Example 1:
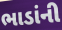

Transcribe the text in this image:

ભાડાંની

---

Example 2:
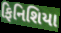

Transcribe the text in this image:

ફિનિશિયા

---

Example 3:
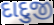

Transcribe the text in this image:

દાદુજી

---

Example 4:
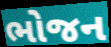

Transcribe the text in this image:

ભોજન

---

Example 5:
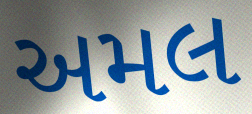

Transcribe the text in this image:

અમલ